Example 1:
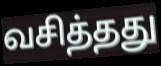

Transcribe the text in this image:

வசித்தது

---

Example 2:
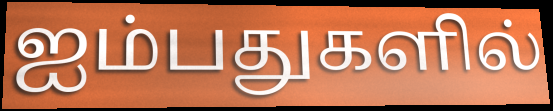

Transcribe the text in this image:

ஐம்பதுகளில்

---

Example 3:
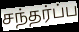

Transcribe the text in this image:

சந்தர்ப்ப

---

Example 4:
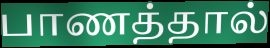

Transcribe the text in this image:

பாணத்தால்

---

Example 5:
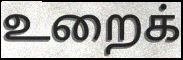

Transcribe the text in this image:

உறைக்